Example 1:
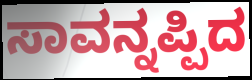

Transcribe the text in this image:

ಸಾವನ್ನಪ್ಪಿದ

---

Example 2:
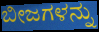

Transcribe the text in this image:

ಬೀಜಗಳನ್ನು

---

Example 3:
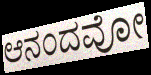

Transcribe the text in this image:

ಆನಂದವೋ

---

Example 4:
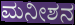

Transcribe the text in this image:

ಮನೀಶನ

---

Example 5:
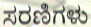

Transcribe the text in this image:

ಸರಣಿಗಳು